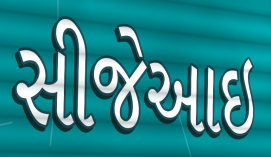
સીજેઆઇ